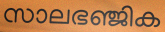
സാലഭഞ്ജിക